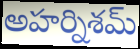
అహర్నిశమ్